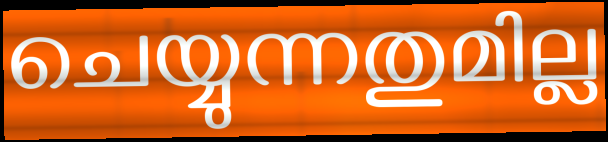
ചെയ്യുന്നതുമില്ല